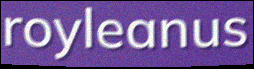
royleanus